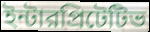
ইন্টারপ্রিটেটিভ